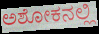
ಅಶೋಕನಲ್ಲಿ